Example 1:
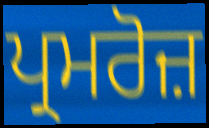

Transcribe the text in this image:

ਪ੍ਰਮਰੋਜ਼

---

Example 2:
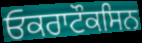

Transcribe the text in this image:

ਓਕਰਾਟੌਕਸਿਨ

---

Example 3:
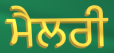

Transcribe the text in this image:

ਮੈਲਰੀ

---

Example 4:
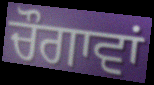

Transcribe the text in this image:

ਚੌਗਾਵਾਂ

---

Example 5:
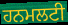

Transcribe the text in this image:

ਹਨਮਲਟੀ